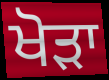
ਖੋੜਾ